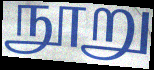
நூறு